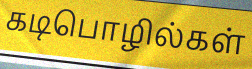
கடிபொழில்கள்